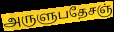
அருளுபதேசஞ்